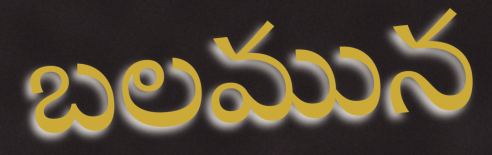
బలమున